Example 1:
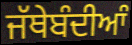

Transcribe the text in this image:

ਜੱਥੇਬੰਦੀਆੰ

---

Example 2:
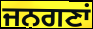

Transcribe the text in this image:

ਜਨਗਣਾਂ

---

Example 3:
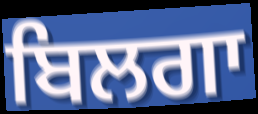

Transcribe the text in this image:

ਬਿਲਗਾ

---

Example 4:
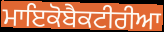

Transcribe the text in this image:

ਮਾਇਕੋਬੈਕਟੀਰੀਆ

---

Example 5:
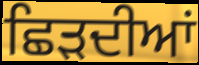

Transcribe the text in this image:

ਛਿੜਦੀਆਂ